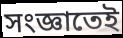
সংজ্ঞাতেই